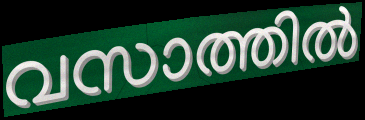
വസാത്തിൽ